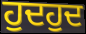
ਹੁਦਹੁਦ